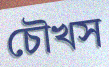
চৌখস